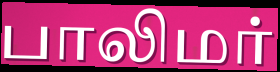
பாலிமர்